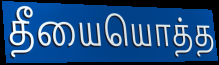
தீயையொத்த